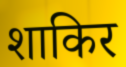
शाकिर